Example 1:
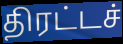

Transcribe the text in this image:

திரட்டச்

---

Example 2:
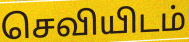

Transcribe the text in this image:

செவியிடம்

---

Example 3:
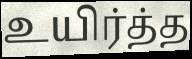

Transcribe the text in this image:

உயிர்த்த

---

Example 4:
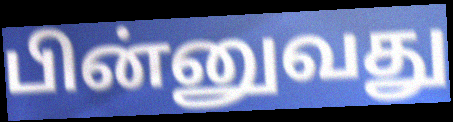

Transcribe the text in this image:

பின்னுவது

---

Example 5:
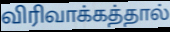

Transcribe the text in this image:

விரிவாக்கத்தால்